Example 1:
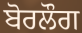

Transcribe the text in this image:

ਬੋਰਲੌਗ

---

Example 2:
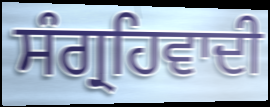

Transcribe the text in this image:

ਸੰਗ੍ਰਹਿਵਾਦੀ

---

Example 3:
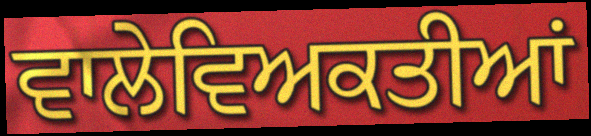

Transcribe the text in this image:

ਵਾਲੇਵਿਅਕਤੀਆਂ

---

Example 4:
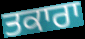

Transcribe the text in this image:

ਤਕਾਰਾ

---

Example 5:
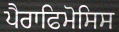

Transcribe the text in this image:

ਪੈਰਾਫਿਮੋਸਿਸ